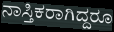
ನಾಸ್ತಿಕರಾಗಿದ್ದರೂ